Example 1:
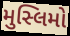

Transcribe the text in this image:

મુસ્લિમો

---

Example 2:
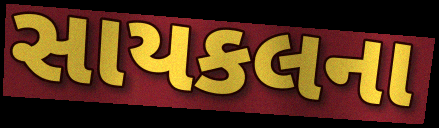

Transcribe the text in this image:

સાયકલના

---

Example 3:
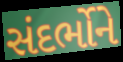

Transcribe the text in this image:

સંદર્ભોને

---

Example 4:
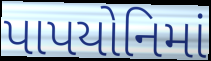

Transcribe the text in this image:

પાપયોનિમાં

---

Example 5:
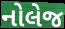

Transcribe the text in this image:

નોલેજ